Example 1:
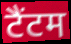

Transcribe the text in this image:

टैंटम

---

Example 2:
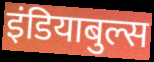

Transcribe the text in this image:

इंडियाबुल्‍स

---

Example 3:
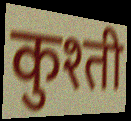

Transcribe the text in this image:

कुश्ती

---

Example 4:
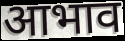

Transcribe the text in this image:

आभाव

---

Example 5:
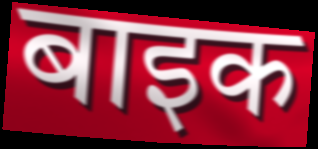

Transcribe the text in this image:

बाइक